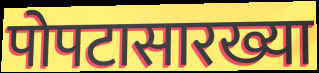
पोपटासारख्या